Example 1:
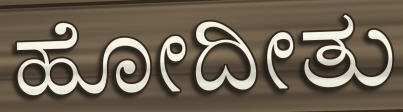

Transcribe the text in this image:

ಹೋದೀತು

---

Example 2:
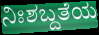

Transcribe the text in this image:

ನಿಃಶಬ್ದತೆಯ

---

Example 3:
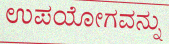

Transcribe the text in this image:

ಉಪಯೋಗವನ್ನು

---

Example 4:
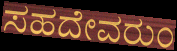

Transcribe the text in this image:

ಸಹದೇವರುಂ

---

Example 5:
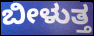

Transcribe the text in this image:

ಬೀಳುತ್ತ